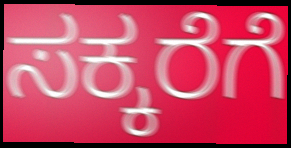
ಸಕ್ಕರೆಗೆ